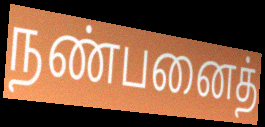
நண்பனைத்